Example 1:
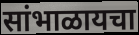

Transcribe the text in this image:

सांभाळायचा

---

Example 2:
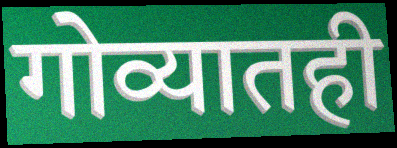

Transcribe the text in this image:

गोव्यातही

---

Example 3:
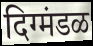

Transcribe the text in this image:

दिग्मंडळ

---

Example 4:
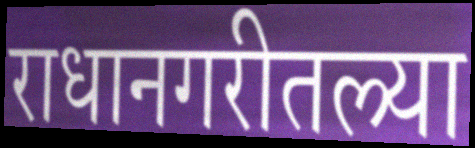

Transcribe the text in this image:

राधानगरीतल्या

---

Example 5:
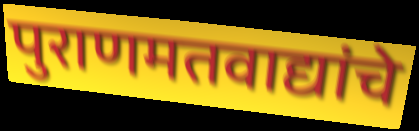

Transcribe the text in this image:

पुराणमतवाद्यांचे